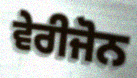
ਵੇਰੀਜੋਨ